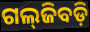
ଗଲ୍‌ଜିବଡ଼ି